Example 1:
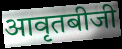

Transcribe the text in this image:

आवृतबीजी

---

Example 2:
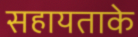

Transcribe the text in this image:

सहायताके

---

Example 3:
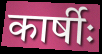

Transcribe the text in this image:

कार्षीः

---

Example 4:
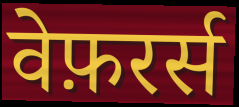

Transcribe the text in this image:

वेफ़रर्स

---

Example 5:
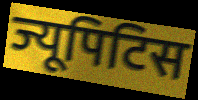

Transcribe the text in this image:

ज्यूपिटिस